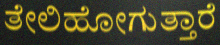
ತೇಲಿಹೋಗುತ್ತಾರೆ